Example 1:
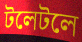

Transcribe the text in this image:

টলেটলে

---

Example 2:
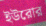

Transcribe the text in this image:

ইউরোর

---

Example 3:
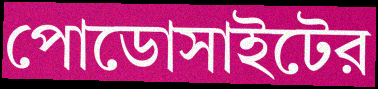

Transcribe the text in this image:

পোডোসাইটের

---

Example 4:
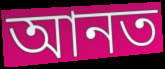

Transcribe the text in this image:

আনত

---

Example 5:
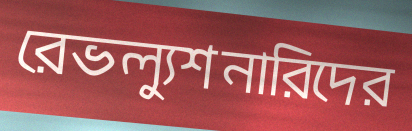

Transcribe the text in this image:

রেভল্যুশনারিদের